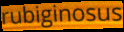
rubiginosus